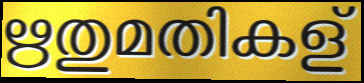
ഋതുമതികള്